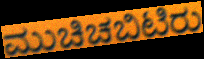
ಮುಚಿಚಬಿಟಿರು